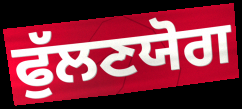
ਫੁੱਲਣਯੋਗ